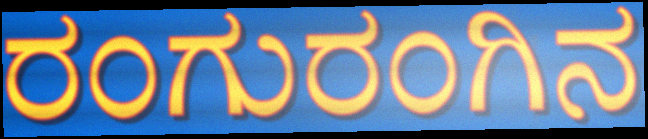
ರಂಗುರಂಗಿನ